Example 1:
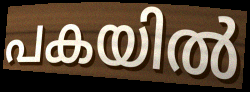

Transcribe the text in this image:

പകയിൽ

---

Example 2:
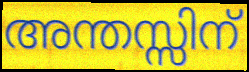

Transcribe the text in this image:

അന്തസ്സിന്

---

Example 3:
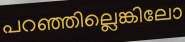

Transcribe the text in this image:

പറഞ്ഞില്ലെങ്കിലോ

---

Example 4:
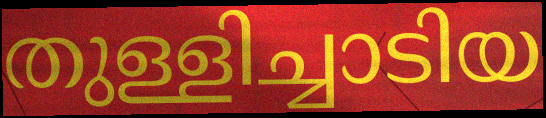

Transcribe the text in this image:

തുള്ളിച്ചാടിയ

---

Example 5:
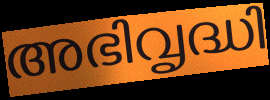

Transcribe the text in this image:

അഭിവൃദ്ധി